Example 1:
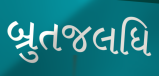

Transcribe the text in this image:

બ્રુતજલધિ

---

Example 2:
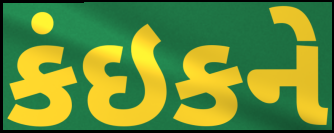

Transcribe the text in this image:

કંઇકને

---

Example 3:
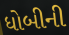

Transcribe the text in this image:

ધોબીની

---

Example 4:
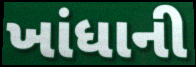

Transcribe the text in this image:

ખાંધાની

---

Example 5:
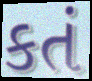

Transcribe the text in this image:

કતં